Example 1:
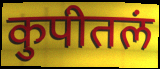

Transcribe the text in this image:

कुपीतलं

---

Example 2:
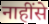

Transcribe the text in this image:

नाहींसे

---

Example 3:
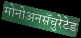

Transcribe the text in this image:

मोनोअनसॅचुरेटेड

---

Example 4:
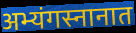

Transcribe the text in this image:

अभ्यंगस्नानात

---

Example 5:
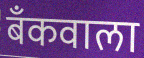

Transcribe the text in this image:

बँकवाला